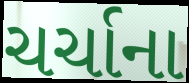
ચર્ચાના